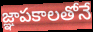
జ్ఞాపకాలతోనే